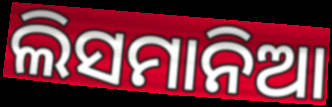
ଲିସମାନିଆ